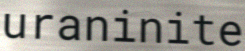
uraninite